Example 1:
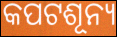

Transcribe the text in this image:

କପଟଶୂନ୍ୟ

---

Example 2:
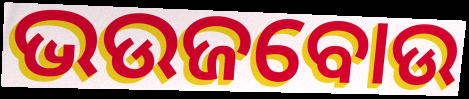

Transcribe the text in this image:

ଭଉଜବୋଉ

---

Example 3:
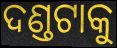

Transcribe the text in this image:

ଦଣ୍ଡଟାକୁ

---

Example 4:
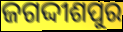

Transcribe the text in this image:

ଜଗଦ୍ଦୀଶପୁର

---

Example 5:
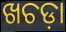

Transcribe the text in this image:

ଖଚଡ଼ା